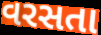
વરસતા